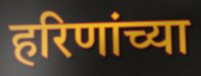
हरिणांच्या